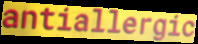
antiallergic